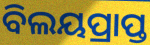
ବିଲୟପ୍ରାପ୍ତ